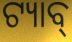
ଟ୍ୟାବ୍